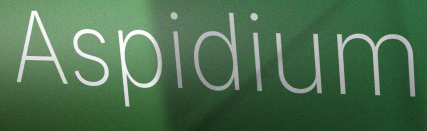
Aspidium